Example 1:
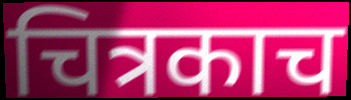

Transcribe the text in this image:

चित्रकाच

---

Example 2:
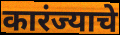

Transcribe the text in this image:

कारंज्याचे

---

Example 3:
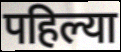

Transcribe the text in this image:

पहिल्या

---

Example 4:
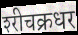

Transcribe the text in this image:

श्रीचक्रधर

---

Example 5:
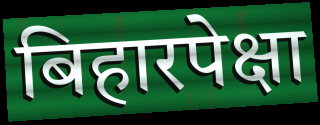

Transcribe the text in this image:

बिहारपेक्षा